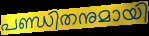
പണ്ഡിതനുമായി